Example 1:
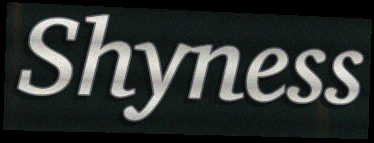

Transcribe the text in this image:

Shyness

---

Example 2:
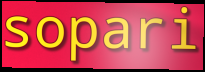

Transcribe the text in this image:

sopari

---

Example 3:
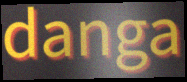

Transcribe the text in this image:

danga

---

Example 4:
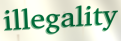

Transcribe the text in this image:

illegality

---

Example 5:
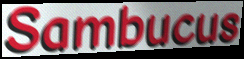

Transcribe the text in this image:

Sambucus